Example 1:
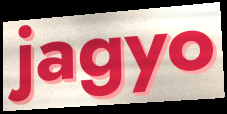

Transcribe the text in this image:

jagyo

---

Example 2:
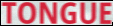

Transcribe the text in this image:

TONGUE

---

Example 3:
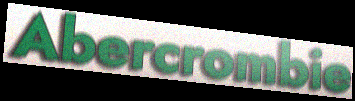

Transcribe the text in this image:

Abercrombie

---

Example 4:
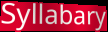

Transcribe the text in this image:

Syllabary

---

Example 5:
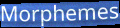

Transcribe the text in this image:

Morphemes